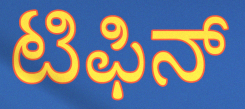
ಟಿಫಿನ್